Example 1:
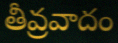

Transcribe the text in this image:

తీవ్రవాదం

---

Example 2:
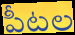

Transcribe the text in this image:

పీటల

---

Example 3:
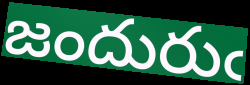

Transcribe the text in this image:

జందురుఁ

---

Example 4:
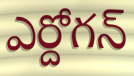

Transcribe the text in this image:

ఎర్దోగన్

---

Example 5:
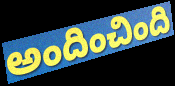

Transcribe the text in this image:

అందించింది